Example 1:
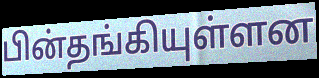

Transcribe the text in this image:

பின்தங்கியுள்ளன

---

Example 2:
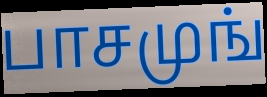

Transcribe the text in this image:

பாசமுங்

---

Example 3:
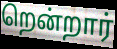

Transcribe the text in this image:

றென்றார்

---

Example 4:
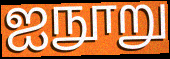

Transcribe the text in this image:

ஐநூறு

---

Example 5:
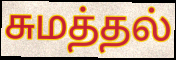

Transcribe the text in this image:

சுமத்தல்